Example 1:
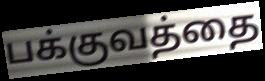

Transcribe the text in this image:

பக்குவத்தை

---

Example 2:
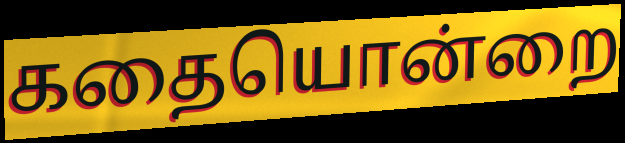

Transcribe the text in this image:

கதையொன்றை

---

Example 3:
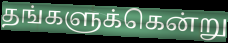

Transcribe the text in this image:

தங்களுக்கென்று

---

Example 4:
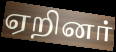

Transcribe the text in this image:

ஏறினர்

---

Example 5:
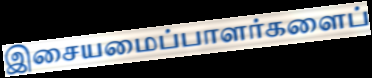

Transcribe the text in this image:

இசையமைப்பாளர்களைப்